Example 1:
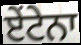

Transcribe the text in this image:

ਏਂਟੇਨਾ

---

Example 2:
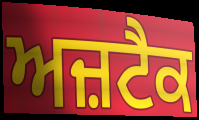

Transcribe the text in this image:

ਅਜ਼ਟੈਕ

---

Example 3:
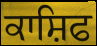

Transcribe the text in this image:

ਕਾਸ਼ਿਫ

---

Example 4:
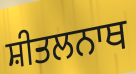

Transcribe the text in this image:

ਸ਼ੀਤਲਨਾਥ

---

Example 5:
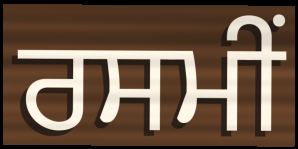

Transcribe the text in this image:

ਰਸਮੀਂ